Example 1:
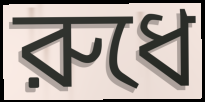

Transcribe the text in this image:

রুধে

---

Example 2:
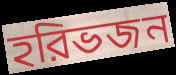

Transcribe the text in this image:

হরিভজন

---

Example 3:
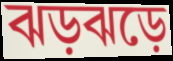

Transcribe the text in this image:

ঝড়ঝড়ে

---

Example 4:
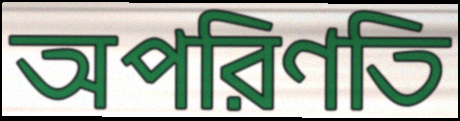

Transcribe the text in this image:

অপরিণতি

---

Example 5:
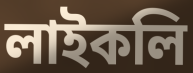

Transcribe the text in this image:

লাইকলি